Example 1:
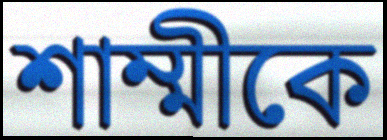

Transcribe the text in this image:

শাম্মীকে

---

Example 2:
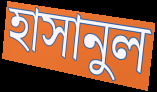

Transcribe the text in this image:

হাসানুল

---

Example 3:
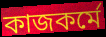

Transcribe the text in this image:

কাজকর্মে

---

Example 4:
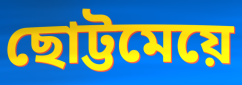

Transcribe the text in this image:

ছোট্টমেয়ে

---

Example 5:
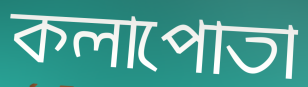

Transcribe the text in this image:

কলাপোতা